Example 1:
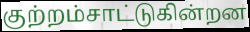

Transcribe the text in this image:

குற்றம்சாட்டுகின்றன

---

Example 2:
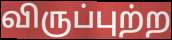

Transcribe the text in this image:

விருப்புற்ற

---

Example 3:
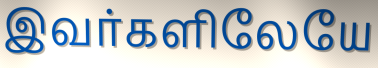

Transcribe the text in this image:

இவர்களிலேயே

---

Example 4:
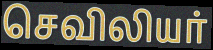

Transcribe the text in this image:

செவிலியர்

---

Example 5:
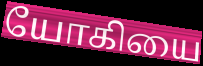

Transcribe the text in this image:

யோகியை